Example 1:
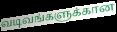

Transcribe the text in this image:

வடிவங்களுக்கான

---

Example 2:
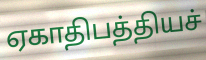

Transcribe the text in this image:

ஏகாதிபத்தியச்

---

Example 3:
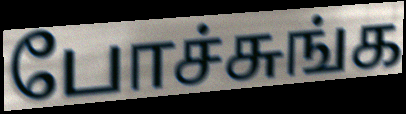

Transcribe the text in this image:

போச்சுங்க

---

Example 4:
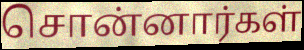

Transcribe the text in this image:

சொன்னார்கள்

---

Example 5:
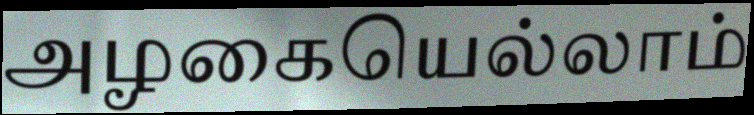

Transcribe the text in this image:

அழகையெல்லாம்